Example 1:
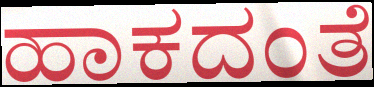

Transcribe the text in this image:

ಹಾಕದಂತೆ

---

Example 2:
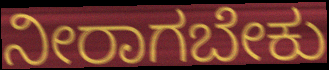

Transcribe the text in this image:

ನೀರಾಗಬೇಕು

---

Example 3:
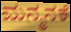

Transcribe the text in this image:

ಮನ್ಮನಕೆ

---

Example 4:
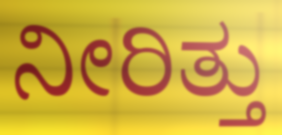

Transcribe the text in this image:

ನೀರಿತ್ತು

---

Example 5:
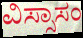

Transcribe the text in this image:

ವಿಸ್ಸಾಸಂ